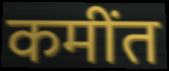
कमींत